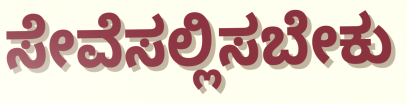
ಸೇವೆಸಲ್ಲಿಸಬೇಕು